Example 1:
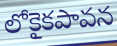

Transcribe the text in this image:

లోకైకపావన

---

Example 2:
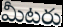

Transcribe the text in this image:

మీటరు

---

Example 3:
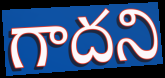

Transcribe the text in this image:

గాదని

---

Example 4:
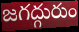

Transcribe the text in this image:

జగద్గురుం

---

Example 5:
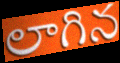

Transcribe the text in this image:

లాగిన